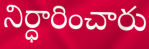
నిర్ధారించారు